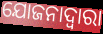
ଯୋଜନାଦ୍ୱାରା